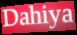
Dahiya